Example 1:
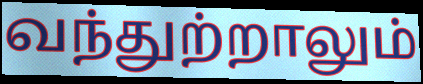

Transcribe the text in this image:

வந்துற்றாலும்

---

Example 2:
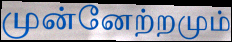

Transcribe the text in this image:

முன்னேற்றமும்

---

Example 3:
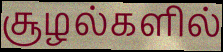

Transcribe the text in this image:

சூழல்களில்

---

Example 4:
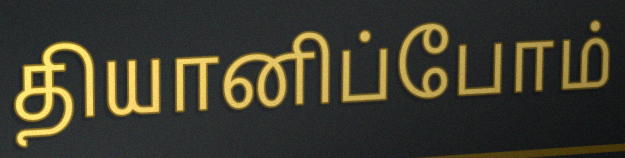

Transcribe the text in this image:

தியானிப்போம்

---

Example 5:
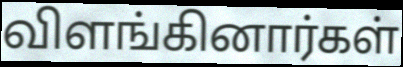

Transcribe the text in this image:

விளங்கினார்கள்